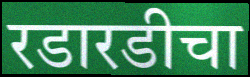
रडारडीचा